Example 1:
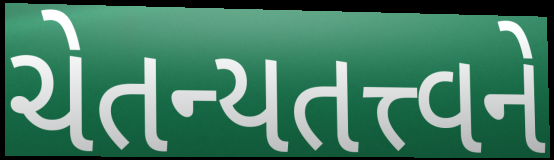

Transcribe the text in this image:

ચેતન્યતત્ત્વને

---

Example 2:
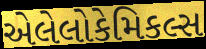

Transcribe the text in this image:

એલેલોકેમિકલ્સ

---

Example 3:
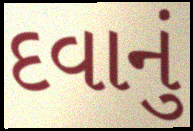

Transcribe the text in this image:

દવાનું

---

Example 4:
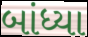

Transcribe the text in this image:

બાંધ્યા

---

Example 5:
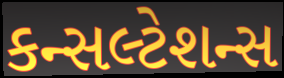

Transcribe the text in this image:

કન્સલ્ટેશન્સ